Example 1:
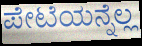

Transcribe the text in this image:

ಪೇಟೆಯನ್ನೆಲ್ಲ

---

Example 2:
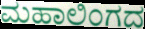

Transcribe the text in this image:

ಮಹಾಲಿಂಗದ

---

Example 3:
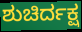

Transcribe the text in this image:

ಶುಚಿರ್ದಕ್ಷ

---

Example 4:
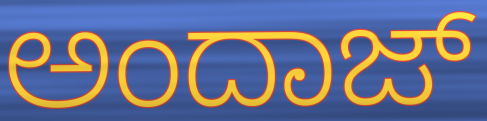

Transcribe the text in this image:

ಅಂದಾಜ್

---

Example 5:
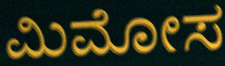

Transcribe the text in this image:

ಮಿಮೋಸ